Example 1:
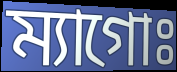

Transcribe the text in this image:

ম্যাগোঃ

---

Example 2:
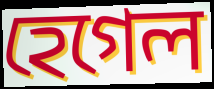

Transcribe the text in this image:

হেগেল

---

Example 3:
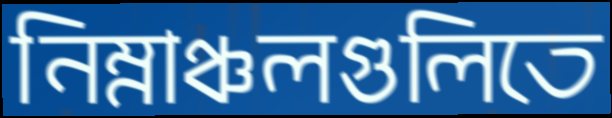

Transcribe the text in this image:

নিম্নাঞ্চলগুলিতে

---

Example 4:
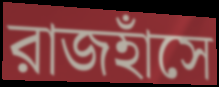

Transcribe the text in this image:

রাজহাঁসে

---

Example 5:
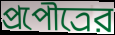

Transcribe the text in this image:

প্রপৌত্রের